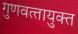
गुणवत्‍तायुक्‍त